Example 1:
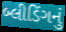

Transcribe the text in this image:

બ્લીડિંગનું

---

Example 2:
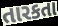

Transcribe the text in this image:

તારકતા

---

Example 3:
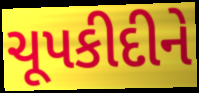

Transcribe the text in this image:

ચૂપકીદીને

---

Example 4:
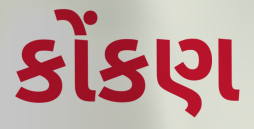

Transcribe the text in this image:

કોંકણ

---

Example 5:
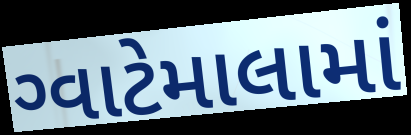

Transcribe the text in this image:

ગ્વાટેમાલામાં